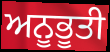
ਅਨੂਭੂਤੀ